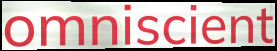
omniscient